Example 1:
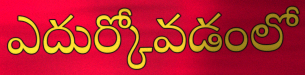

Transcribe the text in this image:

ఎదుర్కోవడంలో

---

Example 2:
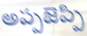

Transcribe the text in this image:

అప్పజెప్పి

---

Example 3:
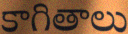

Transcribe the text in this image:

కాగితాలు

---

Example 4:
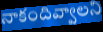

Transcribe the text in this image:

నాకందివ్వాలని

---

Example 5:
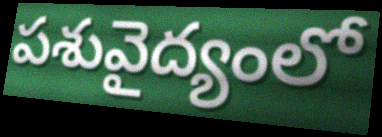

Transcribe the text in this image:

పశువైద్యంలో